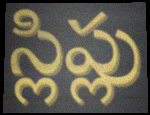
స్లిప్లు